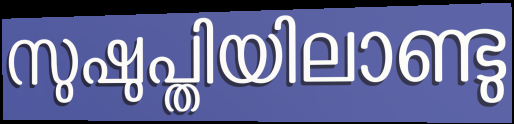
സുഷുപ്തിയിലാണ്ടു